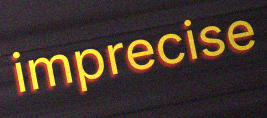
imprecise